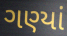
ગણ્યાં